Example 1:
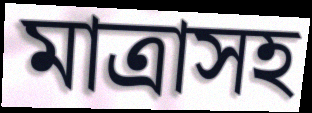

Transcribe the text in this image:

মাত্রাসহ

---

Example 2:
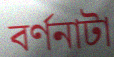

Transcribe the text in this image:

বর্ণনাটা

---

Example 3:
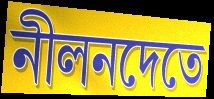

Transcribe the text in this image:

নীলনদেতে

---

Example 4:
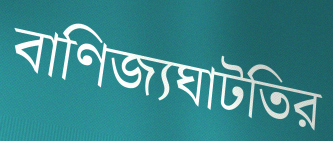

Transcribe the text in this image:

বাণিজ্যঘাটতির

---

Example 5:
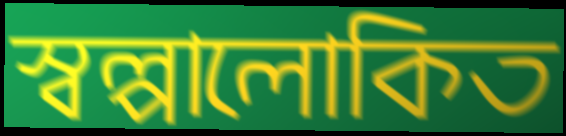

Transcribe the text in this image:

স্বল্পালোকিত